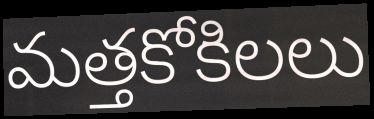
మత్తకోకిలలు